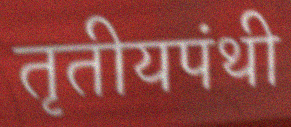
तृतीयपंथी